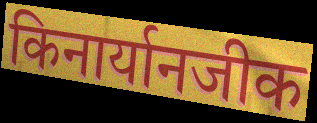
किनार्यानजीक